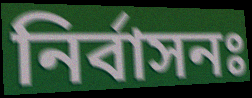
নির্বাসনঃ